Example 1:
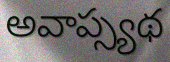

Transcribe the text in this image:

అవాప్స్యథ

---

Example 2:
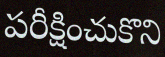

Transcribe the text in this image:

పరీక్షించుకొని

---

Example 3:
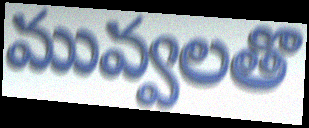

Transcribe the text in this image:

మువ్వలతొ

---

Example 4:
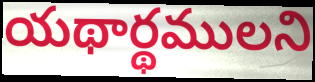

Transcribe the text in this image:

యథార్థములని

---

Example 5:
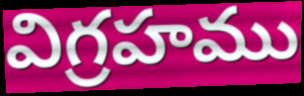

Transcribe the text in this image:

విగ్రహము